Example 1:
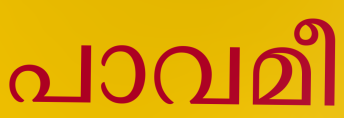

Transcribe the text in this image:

പാവമീ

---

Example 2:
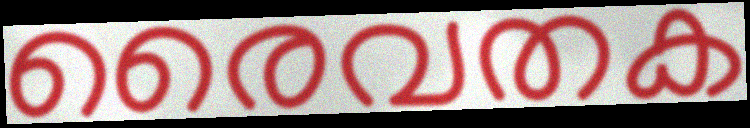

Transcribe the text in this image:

രൈവതക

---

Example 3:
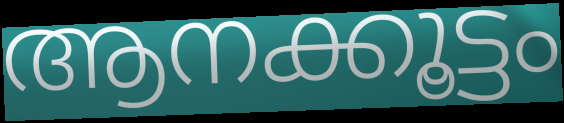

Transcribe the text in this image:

ആനക്കൂട്ടം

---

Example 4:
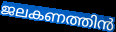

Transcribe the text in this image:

ജലകണത്തിൻ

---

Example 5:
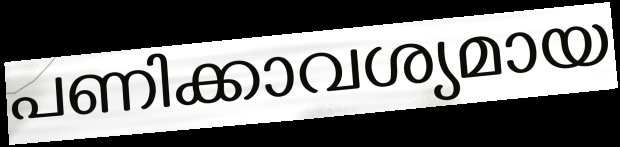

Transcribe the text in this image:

പണിക്കാവശ്യമായ